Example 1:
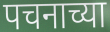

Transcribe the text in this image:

पचनाच्या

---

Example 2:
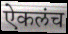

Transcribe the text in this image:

ऐकलंच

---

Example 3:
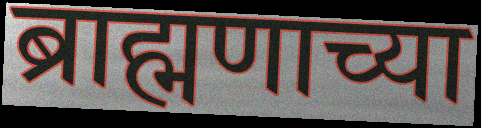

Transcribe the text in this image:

ब्राह्मणाच्या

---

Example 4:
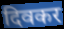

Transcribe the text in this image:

दिवकर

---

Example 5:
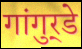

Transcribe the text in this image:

गांगुर्डे